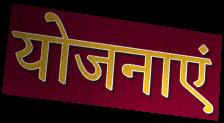
योजनाएं